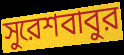
সুরেশবাবুর